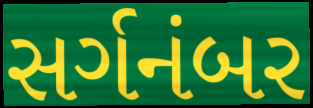
સર્ગનંબર